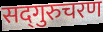
सद्‍गुरुचरण